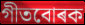
গীতবোৰক